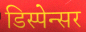
डिस्पेन्सर